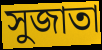
সুজাতা